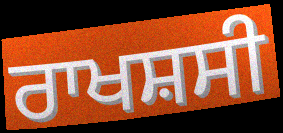
ਰਾਖਸ਼ਸੀ